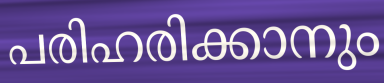
പരിഹരിക്കാനും